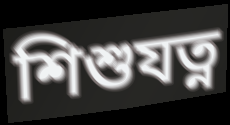
শিশুযত্ন